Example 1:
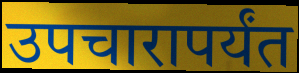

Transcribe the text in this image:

उपचारापर्यंत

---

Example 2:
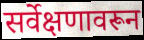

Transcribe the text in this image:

सर्वेक्षणावरून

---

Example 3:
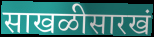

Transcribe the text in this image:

साखळीसारखं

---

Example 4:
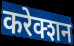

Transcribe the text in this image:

करेक्शन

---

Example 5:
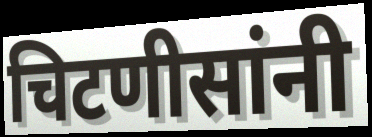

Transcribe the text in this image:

चिटणीसांनी